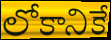
లోకానికే